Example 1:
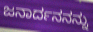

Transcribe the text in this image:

ಜನಾರ್ದನನನ್ನು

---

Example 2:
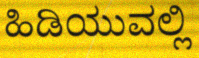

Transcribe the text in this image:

ಹಿಡಿಯುವಲ್ಲಿ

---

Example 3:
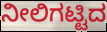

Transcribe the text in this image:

ನೀಲಿಗಟ್ಟಿದ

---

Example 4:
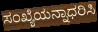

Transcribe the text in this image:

ಸಂಖ್ಯೆಯನ್ನಾಧರಿಸಿ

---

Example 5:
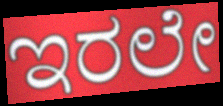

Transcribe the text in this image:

ಇರಲೇ